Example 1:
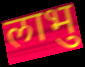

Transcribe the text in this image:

लाभु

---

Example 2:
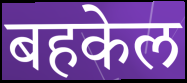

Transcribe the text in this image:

बहकेल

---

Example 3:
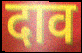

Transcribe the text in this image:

दाव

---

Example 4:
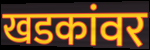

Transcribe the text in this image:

खडकांवर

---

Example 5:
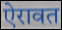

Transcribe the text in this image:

ऐरावत